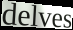
delves